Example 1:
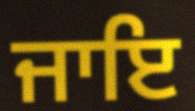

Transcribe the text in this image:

ਜਾਇ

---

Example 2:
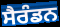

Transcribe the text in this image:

ਸੈਰੰਡਨ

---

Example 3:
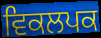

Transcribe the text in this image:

ਵਿਕਲਪਕ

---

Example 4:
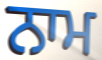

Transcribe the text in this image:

ਨਾਮ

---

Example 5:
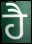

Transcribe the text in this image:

ਹੈ